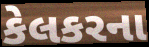
કેલકરના